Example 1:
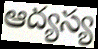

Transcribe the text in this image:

ఆద్యస్య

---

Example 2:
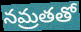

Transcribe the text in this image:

నమ్రతతో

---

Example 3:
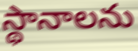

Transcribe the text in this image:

స్థానాలను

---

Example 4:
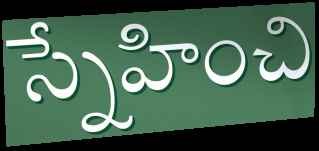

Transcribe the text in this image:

స్నేహించి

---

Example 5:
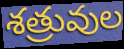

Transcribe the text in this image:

శత్రువుల